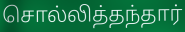
சொல்லித்தந்தார்